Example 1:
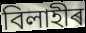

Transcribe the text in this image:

বিলাহীৰ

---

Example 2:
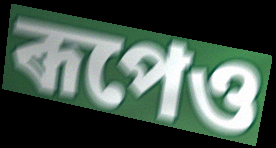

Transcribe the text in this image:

ৰূপেও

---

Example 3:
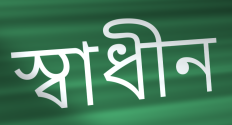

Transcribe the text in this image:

স্বাধীন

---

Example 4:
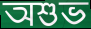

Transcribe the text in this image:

অশুভ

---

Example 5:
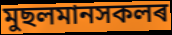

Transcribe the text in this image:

মুছলমানসকলৰ